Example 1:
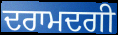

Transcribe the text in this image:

ਦਰਾਮਦਗੀ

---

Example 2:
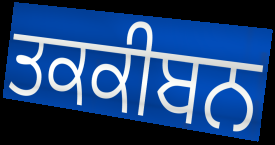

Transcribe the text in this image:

ਤਕਕੀਬਨ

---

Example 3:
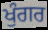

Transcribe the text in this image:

ਖੁੰਗਰ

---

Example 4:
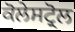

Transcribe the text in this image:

ਕੋਲੇਸਟ੍ਰੋਲ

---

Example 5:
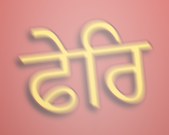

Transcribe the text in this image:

ਫੇਰਿ